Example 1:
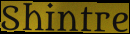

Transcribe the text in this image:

Shintre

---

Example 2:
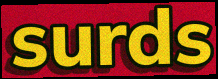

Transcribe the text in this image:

surds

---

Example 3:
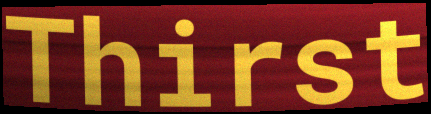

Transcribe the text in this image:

Thirst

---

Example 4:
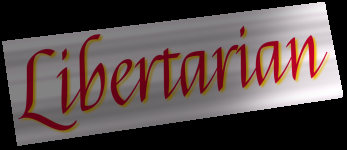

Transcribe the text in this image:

Libertarian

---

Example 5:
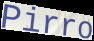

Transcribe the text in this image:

Pirro